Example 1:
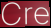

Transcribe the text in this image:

Cre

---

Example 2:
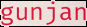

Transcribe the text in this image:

gunjan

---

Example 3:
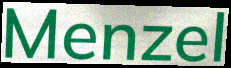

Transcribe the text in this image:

Menzel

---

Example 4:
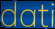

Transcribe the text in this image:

dati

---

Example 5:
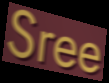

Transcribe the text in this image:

Sree